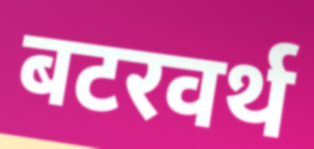
बटरवर्थ